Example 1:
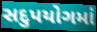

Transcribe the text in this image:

સદુપયોગમાં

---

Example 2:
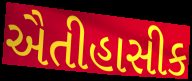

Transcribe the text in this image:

ઐતીહાસીક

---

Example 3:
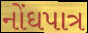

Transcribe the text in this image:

નોંઘપાત્ર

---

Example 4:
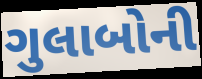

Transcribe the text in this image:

ગુલાબોની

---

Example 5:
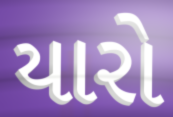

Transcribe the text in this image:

યારો